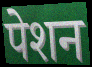
पेशन